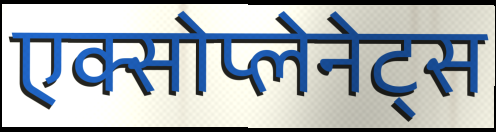
एक्सोप्लेनेट्स